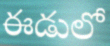
ఈడులో